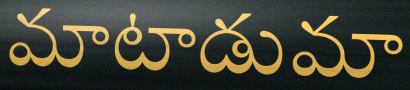
మాటాడుమా